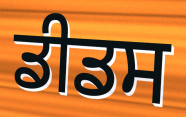
ਡੀਡਸ